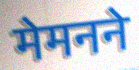
मेमनने